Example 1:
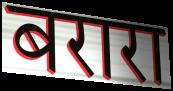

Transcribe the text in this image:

बरारा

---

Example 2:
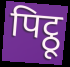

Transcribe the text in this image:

पिट्ठू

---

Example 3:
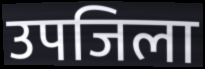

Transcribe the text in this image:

उपजिला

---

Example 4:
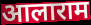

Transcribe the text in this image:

आलाराम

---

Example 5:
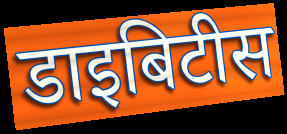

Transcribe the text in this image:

डाइबिटीस